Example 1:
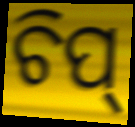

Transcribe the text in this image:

ଚିପ୍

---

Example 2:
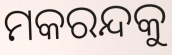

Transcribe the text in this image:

ମକରନ୍ଦକୁ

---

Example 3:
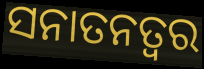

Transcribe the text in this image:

ସନାତନତ୍ୱର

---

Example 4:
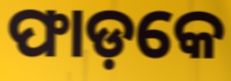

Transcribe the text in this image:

ଫାଡ଼କେ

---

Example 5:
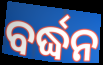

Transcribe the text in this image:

ବର୍ଦ୍ଧନ